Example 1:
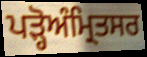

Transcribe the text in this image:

ਪੜ੍ਹੋਅੰਮ੍ਰਿਤਸਰ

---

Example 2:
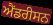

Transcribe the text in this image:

ਐਂਡਰੀਸਨ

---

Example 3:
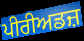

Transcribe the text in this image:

ਪੀਰੀਅਡਜ਼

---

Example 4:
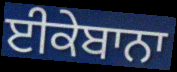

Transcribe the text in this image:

ਈਕੇਬਾਨਾ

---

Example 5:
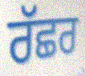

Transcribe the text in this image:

ਰੱਛਰ